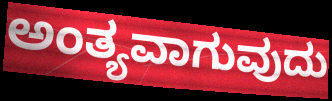
ಅಂತ್ಯವಾಗುವುದು